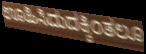
ಊಹಿಸಿದುದಕ್ಕಿಂತಲೂ